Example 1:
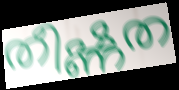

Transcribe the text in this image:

തീഷ്ണത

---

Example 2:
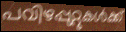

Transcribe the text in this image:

പവിഴപ്പുറ്റുകൾക്ക്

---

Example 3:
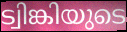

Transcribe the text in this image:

ട്വിങ്കിയുടെ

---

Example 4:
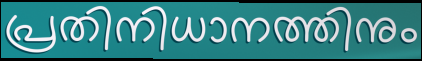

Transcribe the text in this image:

പ്രതിനിധാനത്തിനും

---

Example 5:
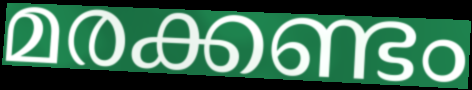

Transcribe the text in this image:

മരക്കണ്ടം